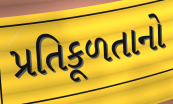
પ્રતિકૂળતાનો